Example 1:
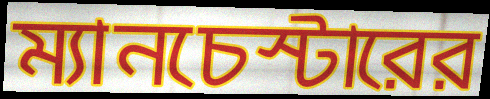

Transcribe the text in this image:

ম্যানচেস্টারের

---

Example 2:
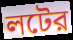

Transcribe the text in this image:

লটের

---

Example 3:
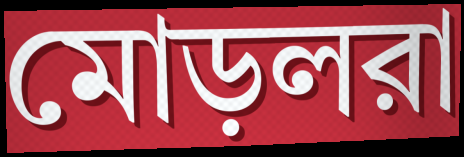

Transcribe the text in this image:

মোড়লরা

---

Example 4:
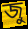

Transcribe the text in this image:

জু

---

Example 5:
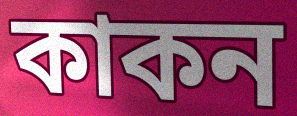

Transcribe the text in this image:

কাকন